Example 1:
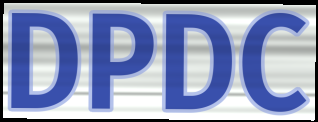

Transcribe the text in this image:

DPDC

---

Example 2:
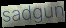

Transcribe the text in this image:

sadgun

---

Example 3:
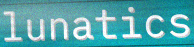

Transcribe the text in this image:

lunatics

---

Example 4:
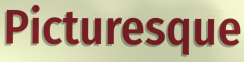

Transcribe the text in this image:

Picturesque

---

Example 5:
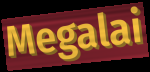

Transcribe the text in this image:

Megalai